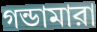
গন্ডামারা